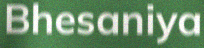
Bhesaniya